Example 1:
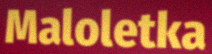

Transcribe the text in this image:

Maloletka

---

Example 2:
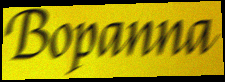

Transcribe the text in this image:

Bopanna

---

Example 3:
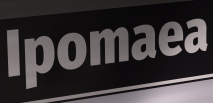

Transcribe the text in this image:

Ipomaea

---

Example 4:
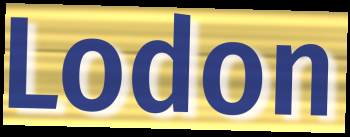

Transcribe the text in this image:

Lodon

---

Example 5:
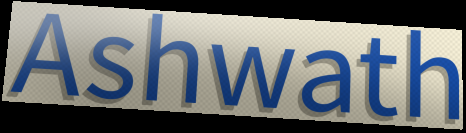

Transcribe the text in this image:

Ashwath